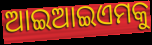
ଆଇଆଇଏମକୁ